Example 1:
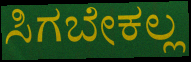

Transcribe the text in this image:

ಸಿಗಬೇಕಲ್ಲ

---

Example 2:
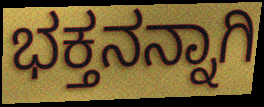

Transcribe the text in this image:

ಭಕ್ತನನ್ನಾಗಿ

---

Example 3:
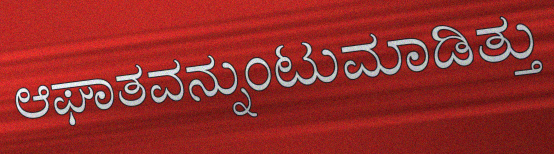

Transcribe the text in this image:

ಆಘಾತವನ್ನುಂಟುಮಾಡಿತ್ತು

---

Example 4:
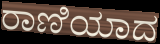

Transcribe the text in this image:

ರಾಣಿಯಾದ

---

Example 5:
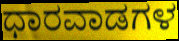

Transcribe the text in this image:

ಧಾರವಾಡಗಳ